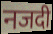
नजदी